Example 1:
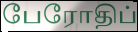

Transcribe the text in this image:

பேரோதிப்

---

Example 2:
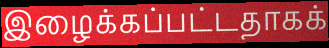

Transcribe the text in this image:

இழைக்கப்பட்டதாகக்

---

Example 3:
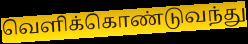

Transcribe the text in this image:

வெளிக்கொண்டுவந்து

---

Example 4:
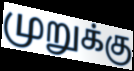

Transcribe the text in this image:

முறுக்கு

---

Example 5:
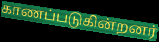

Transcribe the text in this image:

காணப்படுகின்றனர்